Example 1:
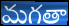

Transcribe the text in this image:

మగతా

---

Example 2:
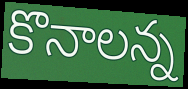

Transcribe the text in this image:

కొనాలన్న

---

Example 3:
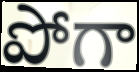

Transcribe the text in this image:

పోగా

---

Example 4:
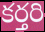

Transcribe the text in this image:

కర్తరి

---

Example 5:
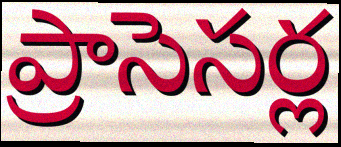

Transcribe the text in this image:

ప్రాసెసర్ల